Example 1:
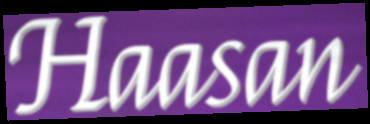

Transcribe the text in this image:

Haasan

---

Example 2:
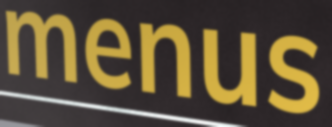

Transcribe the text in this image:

menus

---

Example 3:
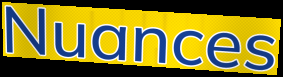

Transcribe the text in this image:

Nuances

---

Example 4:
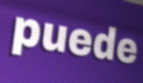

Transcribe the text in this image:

puede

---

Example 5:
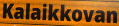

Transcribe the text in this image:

Kalaikkovan